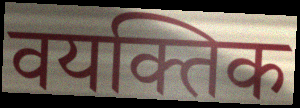
वयक्तिक